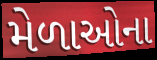
મેળાઓના